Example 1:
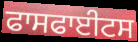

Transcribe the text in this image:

ਫਾਸਫਾਈਟਸ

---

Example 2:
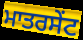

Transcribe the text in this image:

ਮਾਤਰਸੇਂਟ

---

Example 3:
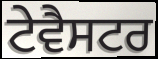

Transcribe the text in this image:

ਟੇਵੈਸਟਰ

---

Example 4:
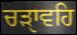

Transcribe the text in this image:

ਚੜੑਾਵਹਿ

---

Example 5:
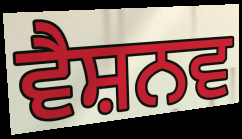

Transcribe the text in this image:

ਵੈਸ਼ਨਵ